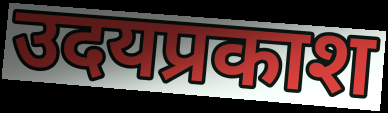
उदयप्रकाश